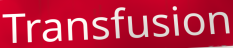
Transfusion